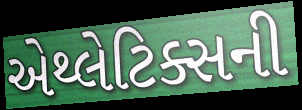
એથ્લેટિક્સની